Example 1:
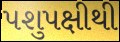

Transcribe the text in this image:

પશુપક્ષીથી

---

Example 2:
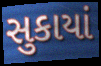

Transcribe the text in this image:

સુકાયાં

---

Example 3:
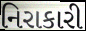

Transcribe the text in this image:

નિરાકારી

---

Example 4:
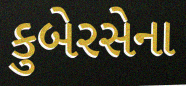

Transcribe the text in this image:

કુબેરસેના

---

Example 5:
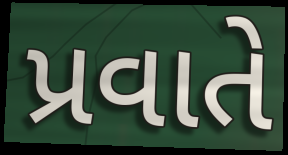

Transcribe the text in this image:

પ્રવાતે